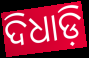
ଦିଧାଡ଼ି